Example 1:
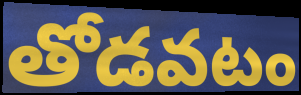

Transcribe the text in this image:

తోడవటం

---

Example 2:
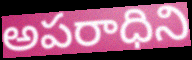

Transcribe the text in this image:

అపరాధిని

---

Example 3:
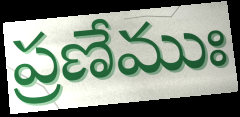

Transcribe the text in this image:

ప్రణేముః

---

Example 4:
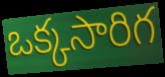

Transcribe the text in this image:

ఒక్కసారిగ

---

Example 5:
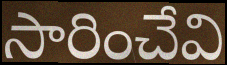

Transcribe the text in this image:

సారించేవి